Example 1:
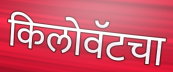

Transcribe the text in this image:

किलोवॅटचा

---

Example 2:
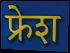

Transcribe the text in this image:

फ्रेश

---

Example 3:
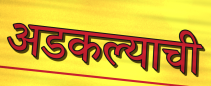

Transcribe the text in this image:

अडकल्याची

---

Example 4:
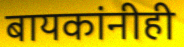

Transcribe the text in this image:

बायकांनीही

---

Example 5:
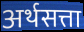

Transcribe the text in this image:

अर्थसत्ता